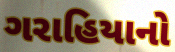
ગરાહિયાનો